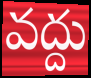
వద్దు